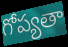
గోప్యతా